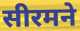
सीरमने